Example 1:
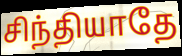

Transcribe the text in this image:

சிந்தியாதே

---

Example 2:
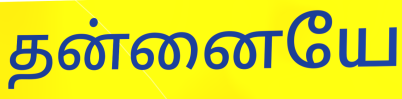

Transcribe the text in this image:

தன்னையே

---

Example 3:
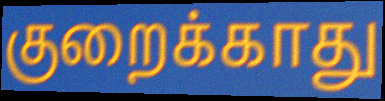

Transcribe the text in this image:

குறைக்காது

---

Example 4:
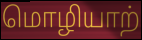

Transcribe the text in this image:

மொழியாற்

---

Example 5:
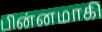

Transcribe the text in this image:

பின்னமாகி